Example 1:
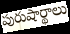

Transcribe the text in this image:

పురుషార్థాలు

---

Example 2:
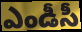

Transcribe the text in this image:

ఎండీసీ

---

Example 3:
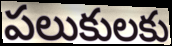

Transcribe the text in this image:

పలుకులకు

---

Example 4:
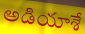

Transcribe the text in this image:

అడియాశే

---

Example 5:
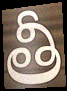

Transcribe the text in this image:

తీ